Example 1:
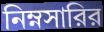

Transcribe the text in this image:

নিম্নসারির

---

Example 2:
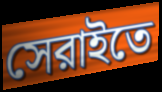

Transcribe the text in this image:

সেরাইতে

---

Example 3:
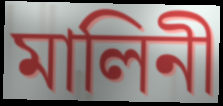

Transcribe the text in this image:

মালিনী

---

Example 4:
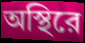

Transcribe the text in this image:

অস্থিরে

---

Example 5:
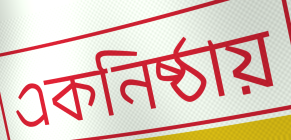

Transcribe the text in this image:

একনিষ্ঠায়